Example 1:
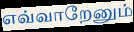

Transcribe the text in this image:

எவ்வாறேனும்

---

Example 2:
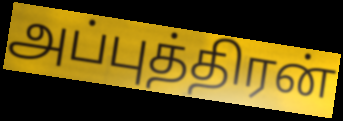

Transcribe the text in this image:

அப்புத்திரன்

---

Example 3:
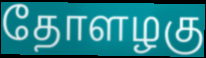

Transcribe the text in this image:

தோளழகு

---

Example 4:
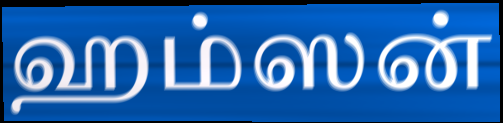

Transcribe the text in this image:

ஹம்ஸன்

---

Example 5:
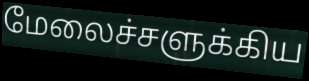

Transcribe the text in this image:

மேலைச்சளுக்கிய